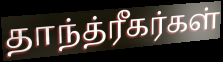
தாந்த்ரீகர்கள்